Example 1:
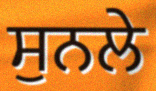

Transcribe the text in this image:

ਸੁਨਲੇ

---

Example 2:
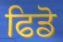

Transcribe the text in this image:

ਫਿਡੋ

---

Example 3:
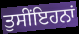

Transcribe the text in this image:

ਤੁਸੀਂਇਹਨਾਂ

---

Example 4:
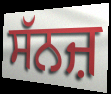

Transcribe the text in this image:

ਸੱਨਜ਼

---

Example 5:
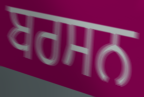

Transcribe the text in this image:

ਬਰਸਨ